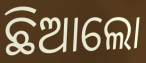
ଛିଆଲୋ